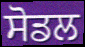
ਸੋਡਲ